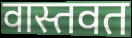
वास्‍तवत